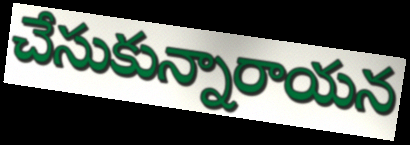
చేసుకున్నారాయన